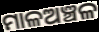
ମାଳଅଞ୍ଚଳ